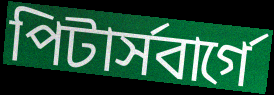
পিটার্সবার্গে